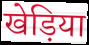
खेड़िया